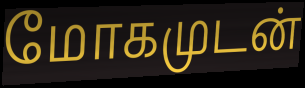
மோகமுடன்